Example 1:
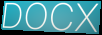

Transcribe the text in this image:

DOCX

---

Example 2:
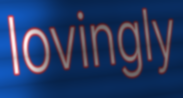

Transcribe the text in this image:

lovingly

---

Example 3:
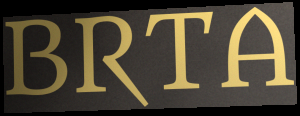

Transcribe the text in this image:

BRTA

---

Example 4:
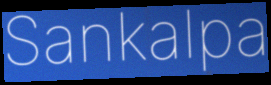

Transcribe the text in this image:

Sankalpa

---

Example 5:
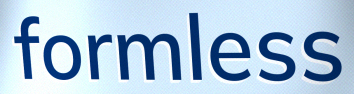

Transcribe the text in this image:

formless